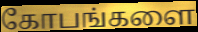
கோபங்களை